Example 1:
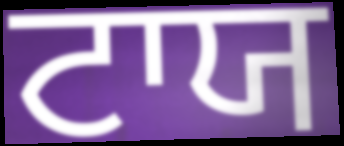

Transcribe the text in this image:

ਟਾਯ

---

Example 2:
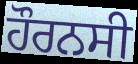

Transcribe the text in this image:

ਹੌਰਨਸੀ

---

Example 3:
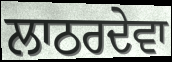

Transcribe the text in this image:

ਲਾਠਰਦੇਵਾ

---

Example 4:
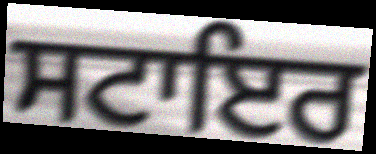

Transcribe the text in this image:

ਸਟਾਇਰ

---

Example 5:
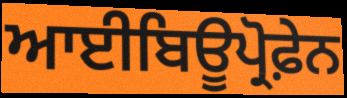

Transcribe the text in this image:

ਆਈਬਿਊਪ੍ਰੋਫ਼ੇਨ